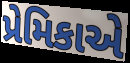
પ્રેમિકાએ